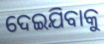
ଦେଇଯିବାକୁ